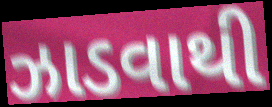
ઝાડવાથી